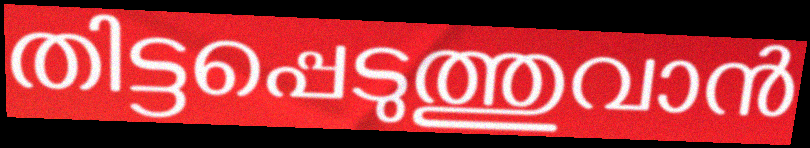
തിട്ടപ്പെടുത്തുവാൻ